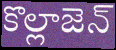
కొల్లాజెన్